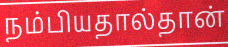
நம்பியதால்தான்